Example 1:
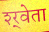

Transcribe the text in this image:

श्र्वेता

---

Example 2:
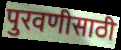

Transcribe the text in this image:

पुरवणीसाठी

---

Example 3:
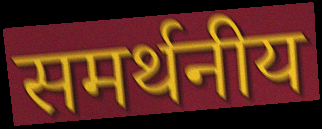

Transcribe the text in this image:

समर्थनीय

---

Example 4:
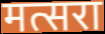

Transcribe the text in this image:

मत्सरा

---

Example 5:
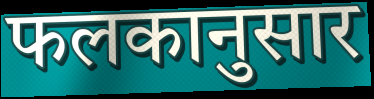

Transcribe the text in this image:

फलकानुसार